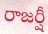
రాజర్షీ